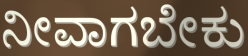
ನೀವಾಗಬೇಕು